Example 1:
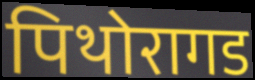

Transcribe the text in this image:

पिथोरागड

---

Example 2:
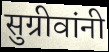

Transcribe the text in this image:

सुग्रीवांनी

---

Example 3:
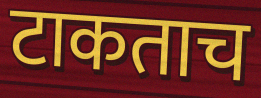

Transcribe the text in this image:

टाकताच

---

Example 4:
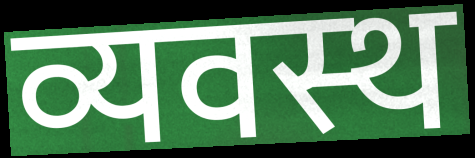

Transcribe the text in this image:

व्यवस्थ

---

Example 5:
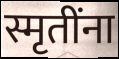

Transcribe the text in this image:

स्मृतींना